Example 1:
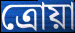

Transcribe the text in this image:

ত্রোয়া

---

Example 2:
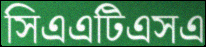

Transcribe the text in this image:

সিএএটিএসএ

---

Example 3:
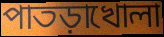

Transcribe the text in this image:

পাতড়াখোলা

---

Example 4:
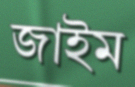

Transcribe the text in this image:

জাইম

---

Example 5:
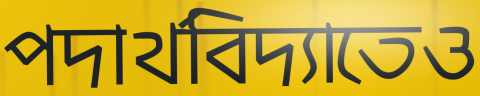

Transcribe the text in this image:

পদার্থবিদ্যাতেও